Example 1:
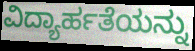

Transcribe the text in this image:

ವಿದ್ಯಾರ್ಹತೆಯನ್ನು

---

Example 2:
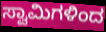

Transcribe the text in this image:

ಸ್ವಾಮಿಗಳಿಂದ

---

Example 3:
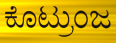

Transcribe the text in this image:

ಕೊಟ್ರುಂಜ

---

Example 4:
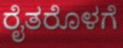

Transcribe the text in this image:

ರೈತರೊಳಗೆ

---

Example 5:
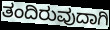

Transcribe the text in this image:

ತಂದಿರುವುದಾಗಿ